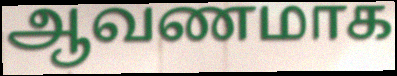
ஆவணமாக